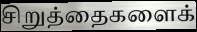
சிறுத்தைகளைக்